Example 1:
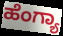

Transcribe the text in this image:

ಹೆಂಗ್ಯಾ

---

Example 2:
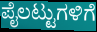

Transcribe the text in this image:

ಪೈಲಟ್ಟುಗಳಿಗೆ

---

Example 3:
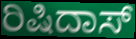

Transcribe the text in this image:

ರಿಷಿದಾಸ್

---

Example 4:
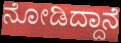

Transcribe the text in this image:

ನೋಡಿದ್ದಾನೆ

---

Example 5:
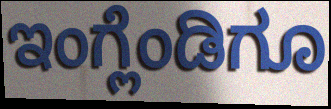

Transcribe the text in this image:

ಇಂಗ್ಲೆಂಡಿಗೂ